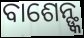
ବାଶେନ୍ଙ୍କ